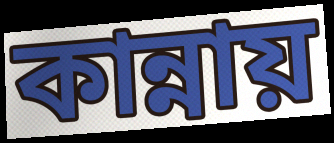
কান্নায়